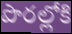
పొరల్లోకి